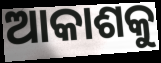
ଆକାଶକୁ